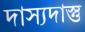
দাস্যদাস্তু